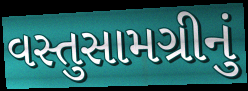
વસ્તુસામગ્રીનું